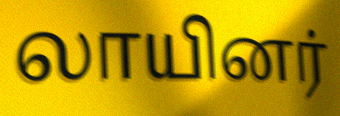
லாயினர்